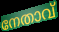
നേതാവ്